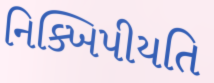
નિક્ખિપીયતિ